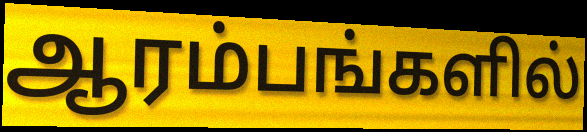
ஆரம்பங்களில்